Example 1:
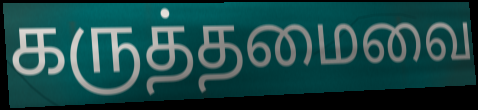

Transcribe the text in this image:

கருத்தமைவை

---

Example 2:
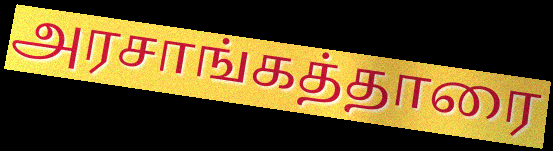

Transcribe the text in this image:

அரசாங்கத்தாரை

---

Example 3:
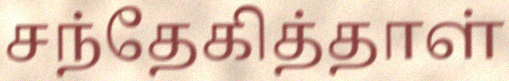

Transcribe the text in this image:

சந்தேகித்தாள்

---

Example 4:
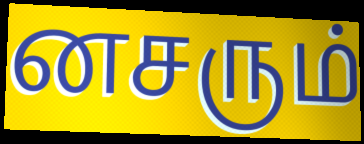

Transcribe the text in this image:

னசரும்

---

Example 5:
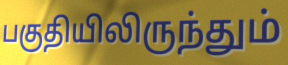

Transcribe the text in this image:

பகுதியிலிருந்தும்